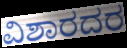
ವಿಶಾರದರ